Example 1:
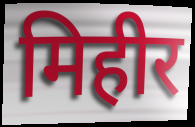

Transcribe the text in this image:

मिहीर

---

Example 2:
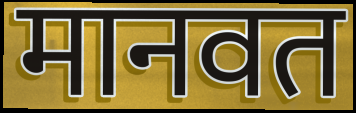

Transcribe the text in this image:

मानवत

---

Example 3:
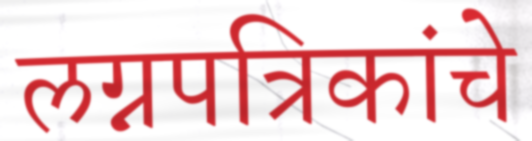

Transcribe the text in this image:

लग्नपत्रिकांचे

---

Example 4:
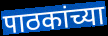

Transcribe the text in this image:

पाठकांच्या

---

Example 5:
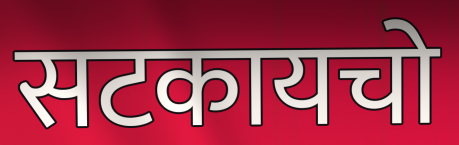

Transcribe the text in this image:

सटकायचो